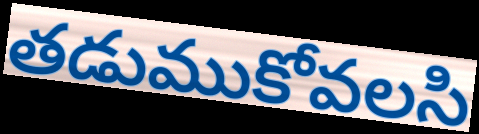
తడుముకోవలసి